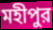
মহীপুর